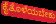
ಕೈತೊಳೆಯಬೇಕು